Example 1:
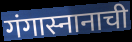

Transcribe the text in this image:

गंगास्नानाची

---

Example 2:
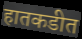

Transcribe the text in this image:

हातकडीत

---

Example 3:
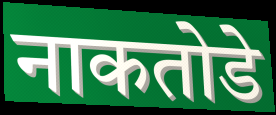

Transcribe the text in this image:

नाकतोडे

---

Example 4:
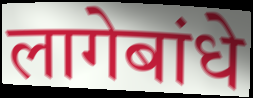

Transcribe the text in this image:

लागेबांधे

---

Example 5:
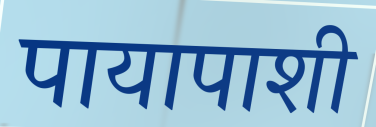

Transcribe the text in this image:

पायापाशी